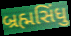
બ્રહ્મસિંધુ